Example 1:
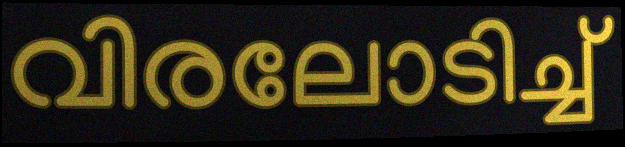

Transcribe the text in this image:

വിരലോടിച്ച്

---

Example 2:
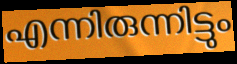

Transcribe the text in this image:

എന്നിരുന്നിട്ടും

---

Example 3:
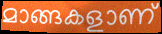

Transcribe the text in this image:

മാങ്ങകളാണ്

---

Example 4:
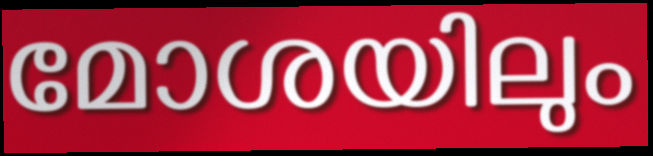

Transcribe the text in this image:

മോശയിലും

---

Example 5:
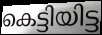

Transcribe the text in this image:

കെട്ടിയിട്ട